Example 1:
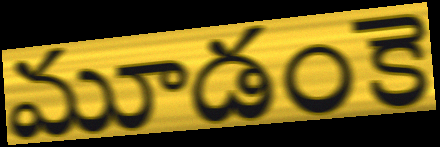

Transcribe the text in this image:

మూడంకె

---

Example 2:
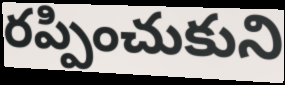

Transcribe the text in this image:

రప్పించుకుని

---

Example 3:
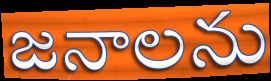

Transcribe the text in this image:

జనాలను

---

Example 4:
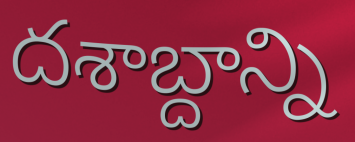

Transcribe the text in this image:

దశాబ్దాన్ని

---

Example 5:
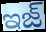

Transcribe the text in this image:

ఇజ్